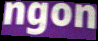
ngon